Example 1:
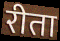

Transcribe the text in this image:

रीता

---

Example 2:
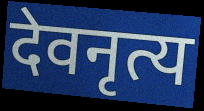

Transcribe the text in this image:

देवनृत्य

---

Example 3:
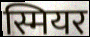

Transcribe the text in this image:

स्मियर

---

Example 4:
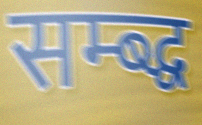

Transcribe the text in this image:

सम्ब्द्ध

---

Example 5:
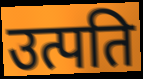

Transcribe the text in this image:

उत्पति